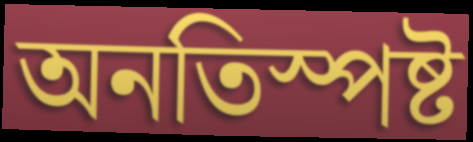
অনতিস্পষ্ট